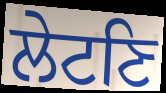
ਲੇਟਣਿ